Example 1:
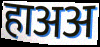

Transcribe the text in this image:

हाअअ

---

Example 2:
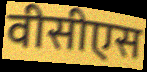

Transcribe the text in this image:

वीसीएस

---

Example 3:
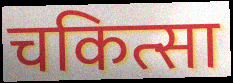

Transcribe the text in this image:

चकित्सा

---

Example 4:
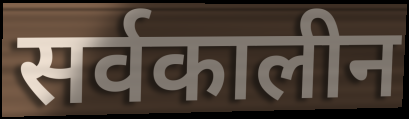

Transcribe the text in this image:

सर्वकालीन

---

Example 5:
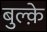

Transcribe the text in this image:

बुल्क़े